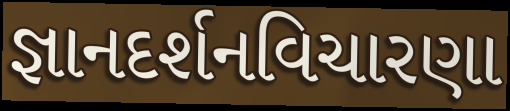
જ્ઞાનદર્શનવિચારણા